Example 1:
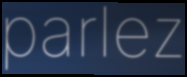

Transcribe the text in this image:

parlez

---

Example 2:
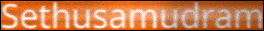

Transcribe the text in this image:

Sethusamudram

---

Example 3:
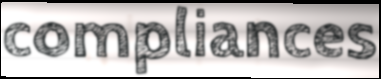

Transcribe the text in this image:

compliances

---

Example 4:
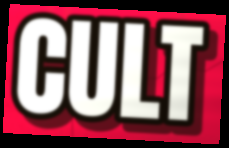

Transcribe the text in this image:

CULT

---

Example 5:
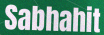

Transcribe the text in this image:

Sabhahit